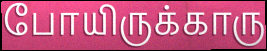
போயிருக்காரு